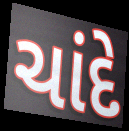
ચાંદે